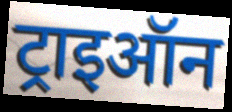
ट्राइऑन